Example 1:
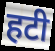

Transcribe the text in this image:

हटी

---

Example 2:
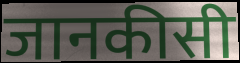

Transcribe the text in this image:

जानकीसी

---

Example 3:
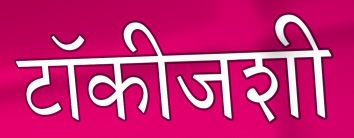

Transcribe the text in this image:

टॉकीजशी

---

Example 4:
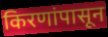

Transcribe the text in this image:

किरणांपासून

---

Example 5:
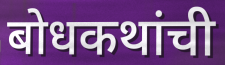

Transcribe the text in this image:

बोधकथांची